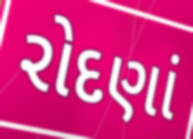
રોદણાં